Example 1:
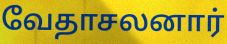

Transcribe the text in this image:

வேதாசலனார்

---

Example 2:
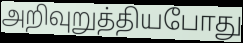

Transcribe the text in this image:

அறிவுறுத்தியபோது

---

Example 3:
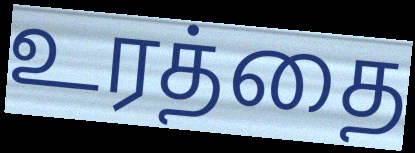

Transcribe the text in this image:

உரத்தை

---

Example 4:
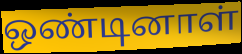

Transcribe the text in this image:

ஒண்டினாள்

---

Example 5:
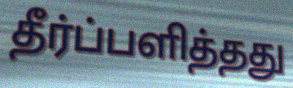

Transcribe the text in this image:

தீர்ப்பளித்தது